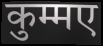
कुम्मए